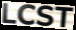
LCST